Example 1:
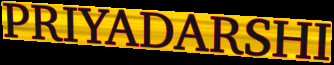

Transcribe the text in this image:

PRIYADARSHI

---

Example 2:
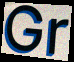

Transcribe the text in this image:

Gr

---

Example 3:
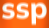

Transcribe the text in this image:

ssp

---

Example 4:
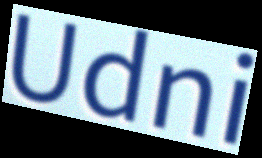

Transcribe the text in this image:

Udni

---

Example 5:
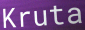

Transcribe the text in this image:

Kruta